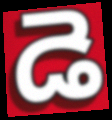
డె